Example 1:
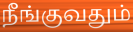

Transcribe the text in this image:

நீங்குவதும்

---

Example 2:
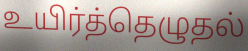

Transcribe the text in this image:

உயிர்த்தெழுதல்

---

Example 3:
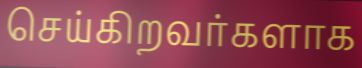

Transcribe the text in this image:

செய்கிறவர்களாக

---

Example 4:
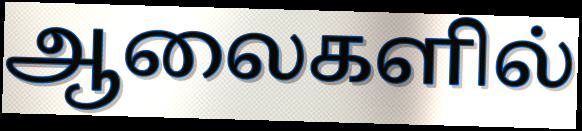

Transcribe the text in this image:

ஆலைகளில்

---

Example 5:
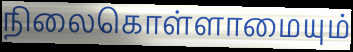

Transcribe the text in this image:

நிலைகொள்ளாமையும்